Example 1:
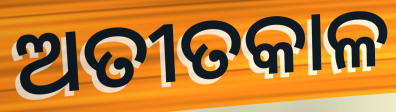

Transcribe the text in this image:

ଅତୀତକାଳ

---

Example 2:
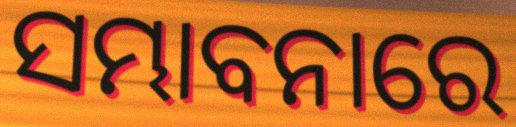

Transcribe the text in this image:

ସମ୍ଭାବନାରେ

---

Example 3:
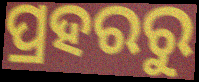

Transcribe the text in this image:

ପ୍ରହରରୁ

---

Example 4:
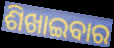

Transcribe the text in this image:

ଶିଖାଇବାର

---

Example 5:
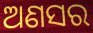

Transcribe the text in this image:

ଅଣସର